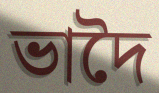
ভাদৈ